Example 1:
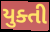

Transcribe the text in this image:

યુક્તી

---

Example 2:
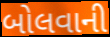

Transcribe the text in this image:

બોલવાની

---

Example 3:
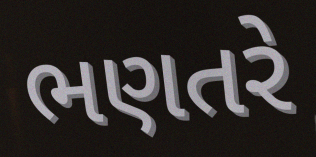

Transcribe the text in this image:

ભણતરે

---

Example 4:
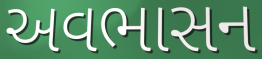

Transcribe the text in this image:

અવભાસન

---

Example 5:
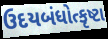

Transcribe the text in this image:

ઉદયબંધોત્કૃષ્ટા